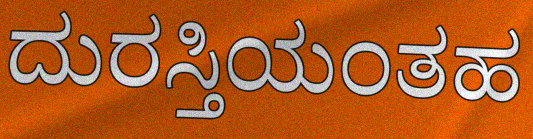
ದುರಸ್ತಿಯಂತಹ